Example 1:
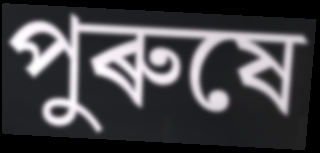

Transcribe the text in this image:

পুৰুষে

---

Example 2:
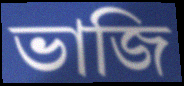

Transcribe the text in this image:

ভাজি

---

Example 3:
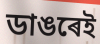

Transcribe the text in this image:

ডাঙৰেই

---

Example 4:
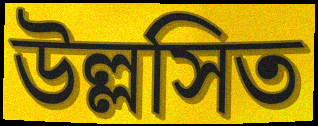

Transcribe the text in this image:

উল্লসিত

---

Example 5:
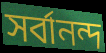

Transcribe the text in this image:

সৰ্বানন্দ